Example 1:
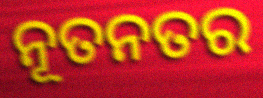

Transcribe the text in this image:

ନୂତନତର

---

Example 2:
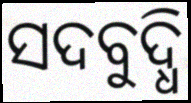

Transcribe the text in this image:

ସଦବୁଦ୍ଧି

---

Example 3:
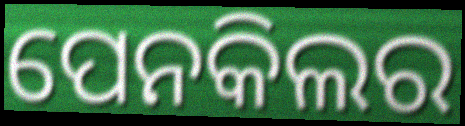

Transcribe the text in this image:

ପେନକିଲର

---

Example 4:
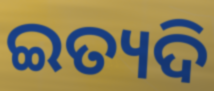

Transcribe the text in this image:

ଇତ୍ୟଦି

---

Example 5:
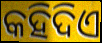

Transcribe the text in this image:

କହିଦିଏ